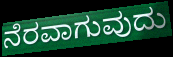
ನೆರವಾಗುವುದು